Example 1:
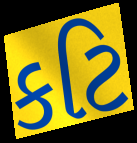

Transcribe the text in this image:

કટિ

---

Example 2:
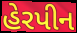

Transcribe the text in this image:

હેરપીન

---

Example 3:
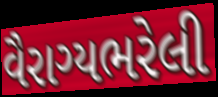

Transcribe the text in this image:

વૈરાગ્યભરેલી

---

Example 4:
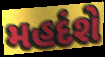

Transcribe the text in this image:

મહદંશે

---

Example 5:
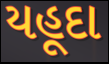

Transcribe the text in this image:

યહૂદા